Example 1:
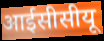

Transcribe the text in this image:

आईसीसीयू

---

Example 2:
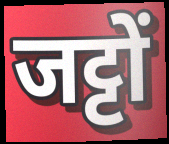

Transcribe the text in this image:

जट्टों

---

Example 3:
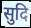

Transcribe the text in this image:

सुदि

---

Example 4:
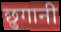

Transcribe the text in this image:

छुगानी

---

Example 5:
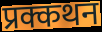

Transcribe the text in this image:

प्रक्कथन